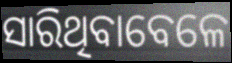
ସାରିଥିବାବେଳେ